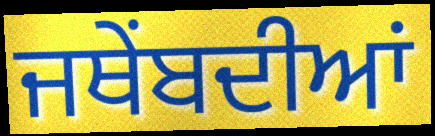
ਜਥੇਂਬਦੀਆਂ